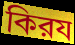
কিরয